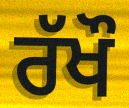
ਰੱਖੌ